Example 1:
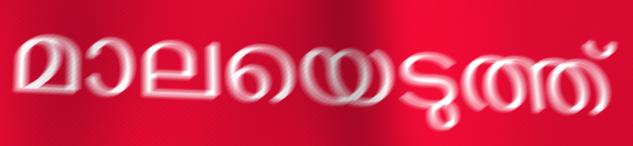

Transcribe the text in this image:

മാലയെടുത്ത്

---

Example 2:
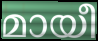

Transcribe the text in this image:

മായീ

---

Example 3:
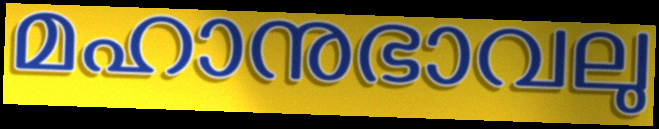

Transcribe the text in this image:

മഹാനുഭാവലു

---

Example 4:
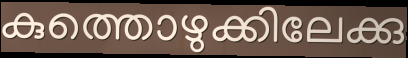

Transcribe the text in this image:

കുത്തൊഴുക്കിലേക്കു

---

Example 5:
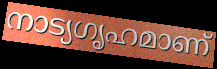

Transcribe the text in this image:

നാട്യഗൃഹമാണ്